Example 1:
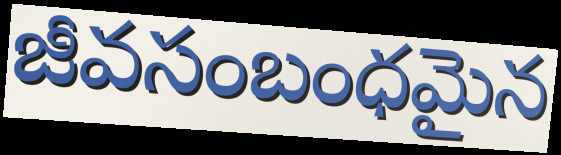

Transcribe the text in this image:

జీవసంబంధమైన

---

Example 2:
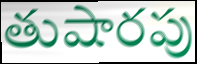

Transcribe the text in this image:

తుషారపు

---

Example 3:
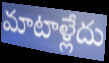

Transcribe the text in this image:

మాటాళ్లేదు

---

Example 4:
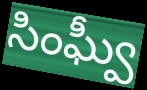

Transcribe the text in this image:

సింఘ్వీ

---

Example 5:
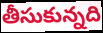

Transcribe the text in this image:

తీసుకున్నది